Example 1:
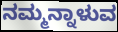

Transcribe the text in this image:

ನಮ್ಮನ್ನಾಳುವ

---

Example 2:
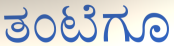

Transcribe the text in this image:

ತಂಟೆಗೂ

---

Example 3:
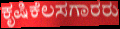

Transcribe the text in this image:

ಕೃಷಿಕೆಲಸಗಾರರು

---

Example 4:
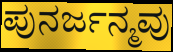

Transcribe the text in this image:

ಪುನರ್ಜನ್ಮವು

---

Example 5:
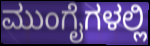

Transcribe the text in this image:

ಮುಂಗೈಗಳಲ್ಲಿ